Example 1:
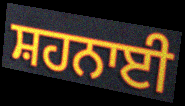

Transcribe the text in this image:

ਸ਼ਹਨਾਈ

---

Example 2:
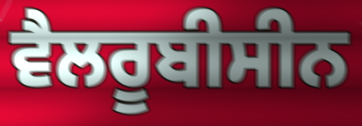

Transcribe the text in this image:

ਵੈਲਰੂਬੀਸੀਨ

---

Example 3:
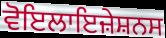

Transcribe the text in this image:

ਵੋਇਲਾਇਜ਼ੇਸ਼ਨਸ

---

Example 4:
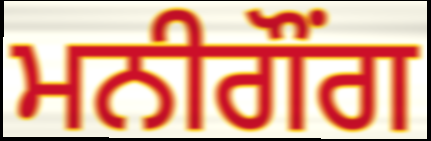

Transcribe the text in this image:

ਮਨੀਗੌਂਗ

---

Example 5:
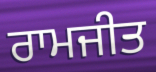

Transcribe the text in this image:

ਰਾਮਜੀਤ